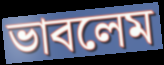
ভাবলেম